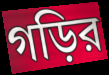
গড়ির